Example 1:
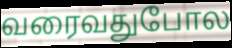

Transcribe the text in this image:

வரைவதுபோல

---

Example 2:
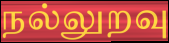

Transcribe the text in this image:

நல்லுறவு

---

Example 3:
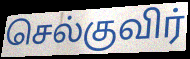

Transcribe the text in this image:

செல்குவிர்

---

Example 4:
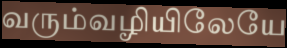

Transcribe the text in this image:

வரும்வழியிலேயே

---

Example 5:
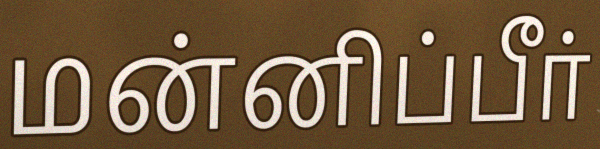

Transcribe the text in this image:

மன்னிப்பீர்